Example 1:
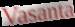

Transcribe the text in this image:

Vasanta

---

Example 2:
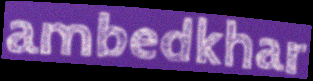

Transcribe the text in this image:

ambedkhar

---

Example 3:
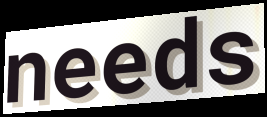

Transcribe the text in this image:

needs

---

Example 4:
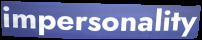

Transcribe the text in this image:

impersonality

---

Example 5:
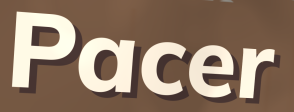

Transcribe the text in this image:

Pacer